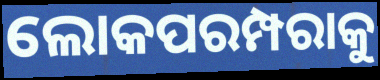
ଲୋକପରମ୍ପରାକୁ